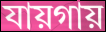
যায়গায়